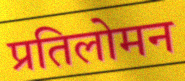
प्रतिलोमन